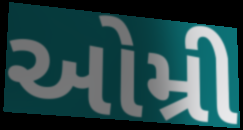
ઓમ્રી